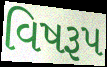
વિષરૂપ